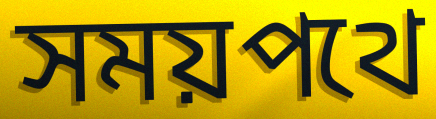
সময়পথে